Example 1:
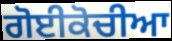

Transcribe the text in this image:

ਗੋਈਕੋਚੀਆ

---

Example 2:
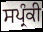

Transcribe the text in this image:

ਸਪ੍ਰੰਕੀ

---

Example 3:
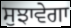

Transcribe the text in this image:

ਸੁਝਾਵੇਗਾ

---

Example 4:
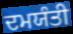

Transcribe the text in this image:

ਦਮਯੰਤੀ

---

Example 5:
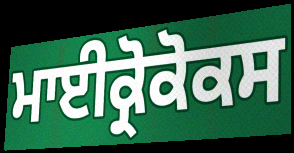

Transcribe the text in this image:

ਮਾਈਕ੍ਰੋਕੋਕਸ